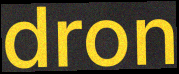
dron